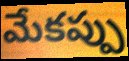
మేకప్పు